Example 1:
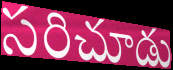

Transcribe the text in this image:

సరిచూడు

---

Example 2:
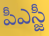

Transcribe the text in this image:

పీఎస్జీ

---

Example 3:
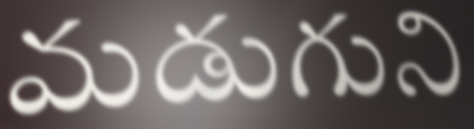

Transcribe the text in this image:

మడుగుని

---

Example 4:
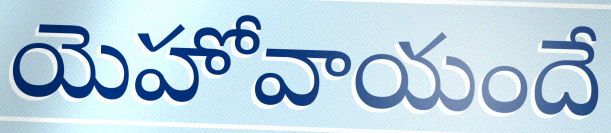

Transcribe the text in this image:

యెహోవాయందే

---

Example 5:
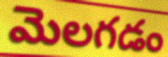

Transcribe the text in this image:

మెలగడం